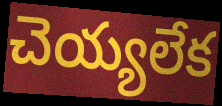
చెయ్యలేక